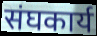
संघकार्य